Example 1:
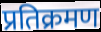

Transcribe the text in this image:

प्रतिक्रमण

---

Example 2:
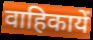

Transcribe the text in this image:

वाहिकायें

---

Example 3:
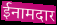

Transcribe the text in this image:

ईनामदार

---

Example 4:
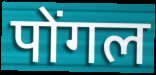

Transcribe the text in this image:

पोंगल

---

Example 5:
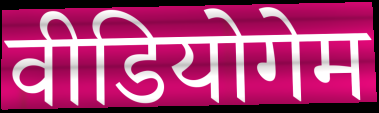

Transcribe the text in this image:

वीडियोगेम